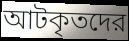
আটকৃতদের